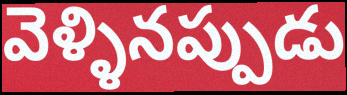
వెళ్ళినప్పుడు